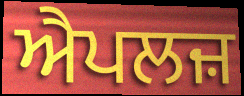
ਐਪਲਜ਼